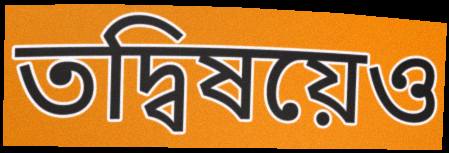
তদ্বিষয়েও